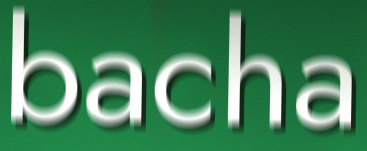
bacha